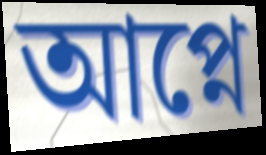
আপ্নে